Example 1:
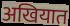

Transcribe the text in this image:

अखियात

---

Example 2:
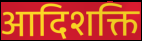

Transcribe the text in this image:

आदिशक्ति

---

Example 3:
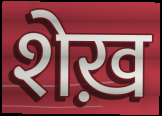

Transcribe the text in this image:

शेख़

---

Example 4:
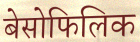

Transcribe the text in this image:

बेसोफिलिक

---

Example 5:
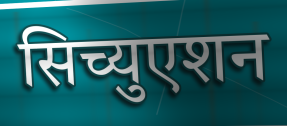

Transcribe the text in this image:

सिच्युएशन